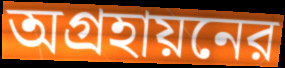
অগ্রহায়নের